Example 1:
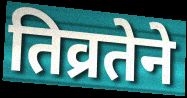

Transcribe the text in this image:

तिव्रतेने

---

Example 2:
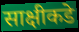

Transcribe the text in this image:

साक्षीकडे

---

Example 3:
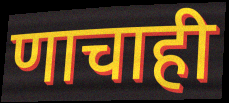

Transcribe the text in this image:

णाचाही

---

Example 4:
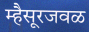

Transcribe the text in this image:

म्हैसूरजवळ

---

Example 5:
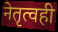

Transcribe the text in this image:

नेतृत्वही